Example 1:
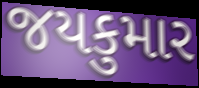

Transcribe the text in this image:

જયકુમાર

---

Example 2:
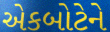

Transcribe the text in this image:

એકબોટેને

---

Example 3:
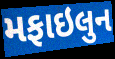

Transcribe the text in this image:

મફાઇલુન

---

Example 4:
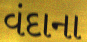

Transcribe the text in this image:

વંદાના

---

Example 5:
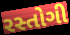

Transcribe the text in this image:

રસ્તોગી